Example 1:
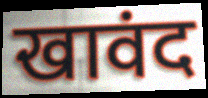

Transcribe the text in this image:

खावंद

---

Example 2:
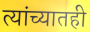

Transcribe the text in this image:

त्यांच्यातही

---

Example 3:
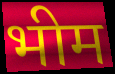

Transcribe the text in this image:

भीम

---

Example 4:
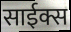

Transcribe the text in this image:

साईक्स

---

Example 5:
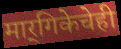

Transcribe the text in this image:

मार्गिकेचेही